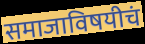
समाजाविषयीचं